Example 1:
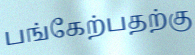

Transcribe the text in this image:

பங்கேற்பதற்கு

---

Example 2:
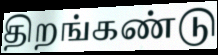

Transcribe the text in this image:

திறங்கண்டு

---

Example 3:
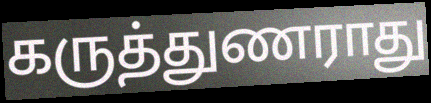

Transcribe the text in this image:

கருத்துணராது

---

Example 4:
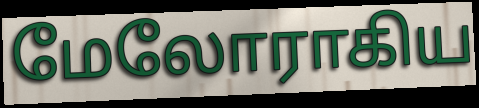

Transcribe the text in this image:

மேலோராகிய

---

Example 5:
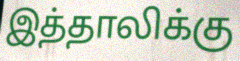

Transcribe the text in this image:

இத்தாலிக்கு